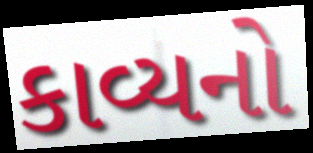
કાવ્યનો